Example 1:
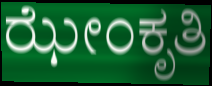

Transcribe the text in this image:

ಝೇಂಕೃತಿ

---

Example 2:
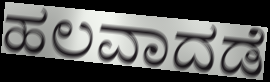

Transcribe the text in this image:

ಹಲವಾದಡೆ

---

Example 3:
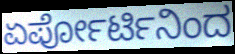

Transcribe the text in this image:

ಏರ್ಪೋರ್ಟಿನಿಂದ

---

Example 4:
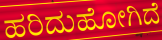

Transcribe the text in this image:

ಹರಿದುಹೋಗಿದೆ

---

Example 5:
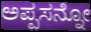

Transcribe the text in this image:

ಅಪ್ಪಸನ್ನೋ